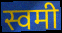
स्वमी